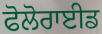
ਫੋਲੋਰਾਈਡ